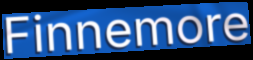
Finnemore